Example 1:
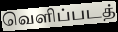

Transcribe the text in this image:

வெளிப்படத்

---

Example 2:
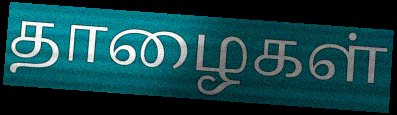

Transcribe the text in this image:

தாழைகள்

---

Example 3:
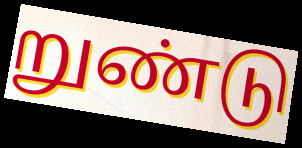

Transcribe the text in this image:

றுண்டு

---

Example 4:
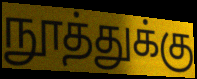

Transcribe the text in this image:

நூத்துக்கு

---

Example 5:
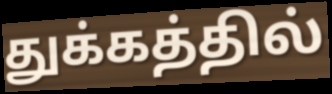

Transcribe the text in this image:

துக்கத்தில்